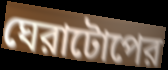
ঘেরাটোপের